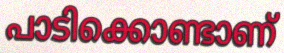
പാടിക്കൊണ്ടാണ്